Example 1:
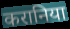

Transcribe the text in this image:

करानिया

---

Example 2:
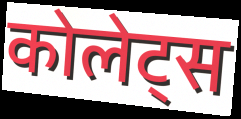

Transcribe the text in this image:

कोलेट्स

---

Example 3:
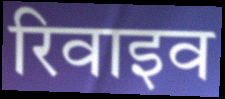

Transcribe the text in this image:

रिवाइव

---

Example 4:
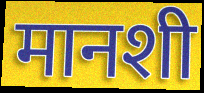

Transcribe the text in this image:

मानशी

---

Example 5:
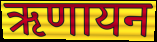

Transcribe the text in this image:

ऋणायन